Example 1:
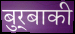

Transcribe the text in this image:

बुर्बाकी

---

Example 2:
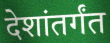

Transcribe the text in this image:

देशांतर्गंत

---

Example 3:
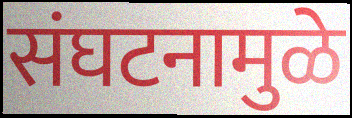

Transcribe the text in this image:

संघटनामुळे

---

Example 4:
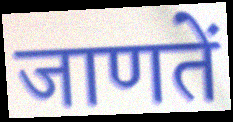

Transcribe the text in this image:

जाणतें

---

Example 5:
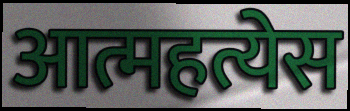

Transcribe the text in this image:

आत्महत्येस